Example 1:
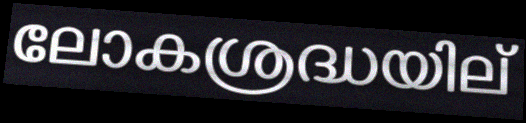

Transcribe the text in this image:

ലോകശ്രദ്ധയില്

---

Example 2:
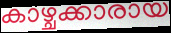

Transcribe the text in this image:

കാഴ്ചക്കാരായ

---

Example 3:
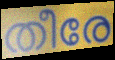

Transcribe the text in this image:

തീരേ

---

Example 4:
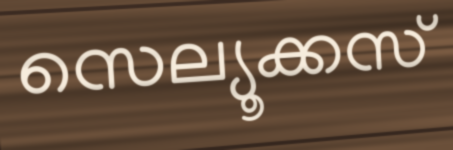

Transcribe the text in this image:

സെല്യൂക്കസ്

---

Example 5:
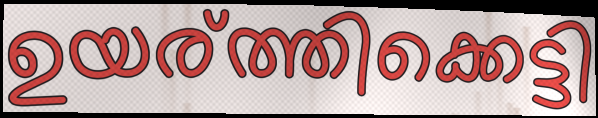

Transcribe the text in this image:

ഉയര്ത്തിക്കെട്ടി